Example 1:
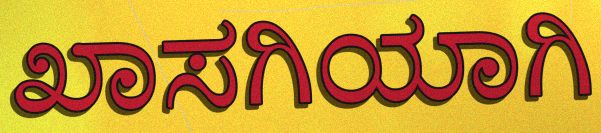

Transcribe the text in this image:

ಖಾಸಗಿಯಾಗಿ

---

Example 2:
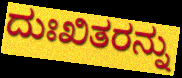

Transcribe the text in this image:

ದುಃಖಿತರನ್ನು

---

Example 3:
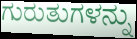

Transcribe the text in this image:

ಗುರುತುಗಳನ್ನು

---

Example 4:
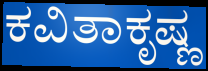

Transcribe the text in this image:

ಕವಿತಾಕೃಷ್ಣ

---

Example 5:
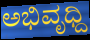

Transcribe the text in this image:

ಅಭಿವೃಧ್ದಿ